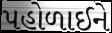
પહોળાઈને